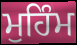
ਮੁਹਿੰਮ